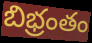
బిభ్రంతం